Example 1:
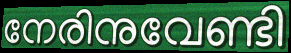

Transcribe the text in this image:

നേരിനുവേണ്ടി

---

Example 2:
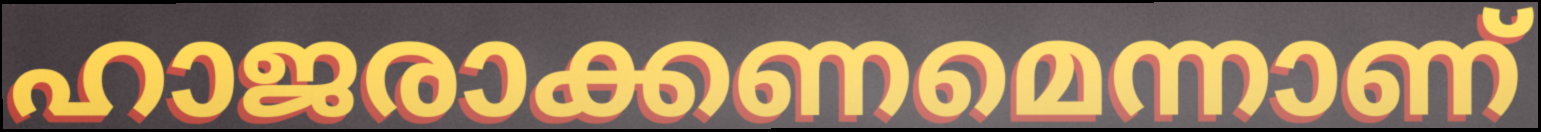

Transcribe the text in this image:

ഹാജരാക്കണമെന്നാണ്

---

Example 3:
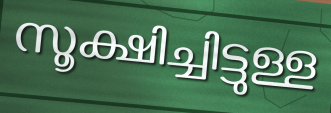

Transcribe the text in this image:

സൂക്ഷിച്ചിട്ടുള്ള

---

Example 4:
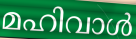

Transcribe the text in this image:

മഹിവാൾ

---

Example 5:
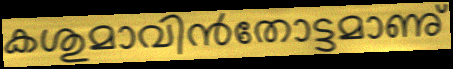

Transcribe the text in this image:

കശുമാവിൻതോട്ടമാണു്